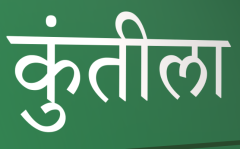
कुंतीला